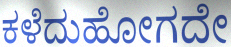
ಕಳೆದುಹೋಗದೇ